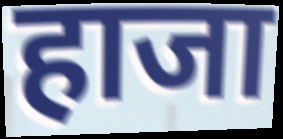
हाजा